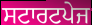
ਸਟਾਰਟਪੇਜ